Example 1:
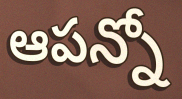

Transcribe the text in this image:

ఆపన్నో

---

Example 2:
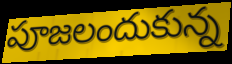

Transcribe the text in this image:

పూజలందుకున్న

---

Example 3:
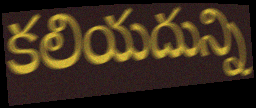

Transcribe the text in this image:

కలియదున్ని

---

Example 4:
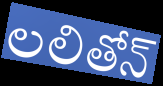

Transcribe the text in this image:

లలితోన్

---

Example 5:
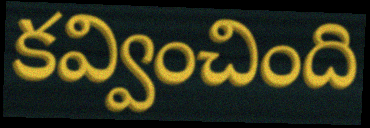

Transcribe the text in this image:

కవ్వించింది